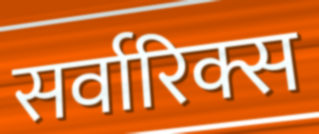
सर्वारिक्स